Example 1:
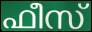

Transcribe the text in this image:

ഫീസ്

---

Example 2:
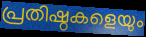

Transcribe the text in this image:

പ്രതിഷ്ഠകളെയും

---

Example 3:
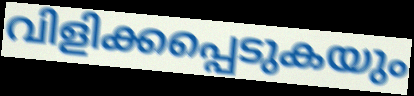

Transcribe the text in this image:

വിളിക്കപ്പെടുകയും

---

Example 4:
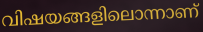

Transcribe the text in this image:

വിഷയങ്ങളിലൊന്നാണ്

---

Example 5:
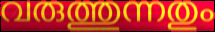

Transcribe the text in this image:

വരുത്തുന്നതും